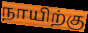
நாயிற்கு